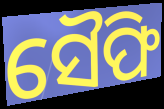
ସୈଫି